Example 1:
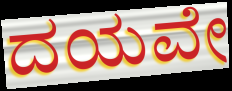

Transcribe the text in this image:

ದಯವೇ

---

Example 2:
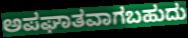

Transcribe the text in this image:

ಅಪಘಾತವಾಗಬಹುದು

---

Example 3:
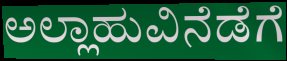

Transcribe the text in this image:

ಅಲ್ಲಾಹುವಿನೆಡೆಗೆ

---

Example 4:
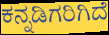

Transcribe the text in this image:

ಕನ್ನಡಿಗರಿಗಿದೆ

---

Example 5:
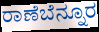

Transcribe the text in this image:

ರಾಣೆಬೆನ್ನೂರ